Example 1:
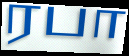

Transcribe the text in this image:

ரபா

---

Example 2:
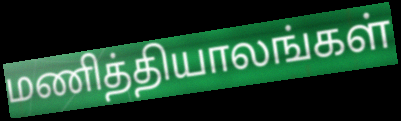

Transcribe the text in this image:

மணித்தியாலங்கள்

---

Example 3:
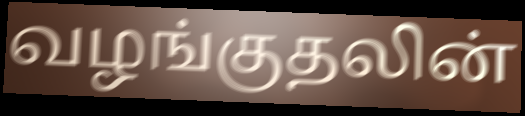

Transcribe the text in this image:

வழங்குதலின்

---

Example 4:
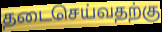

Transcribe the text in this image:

தடைசெய்வதற்கு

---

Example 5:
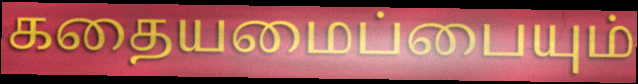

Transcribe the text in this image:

கதையமைப்பையும்